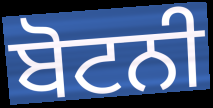
ਬੋਟਨੀ